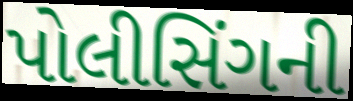
પોલીસિંગની